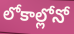
లోకాల్లోనో